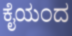
ಕೈಯಂದ